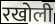
रखोली